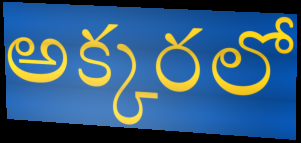
అక్కరలో